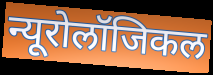
न्यूरोलॉजिकल